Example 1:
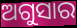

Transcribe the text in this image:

ଅଗୁସାର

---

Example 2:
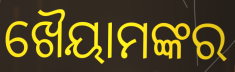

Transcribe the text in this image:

ଖୈୟାମଙ୍କର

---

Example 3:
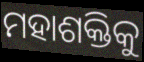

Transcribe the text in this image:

ମହାଶକ୍ତିକୁ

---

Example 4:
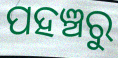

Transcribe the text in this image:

ପହଞ୍ଚରୁ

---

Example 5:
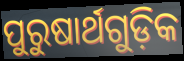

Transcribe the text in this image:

ପୁରୁଷାର୍ଥଗୁଡ଼ିକ